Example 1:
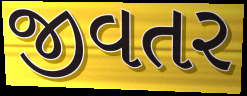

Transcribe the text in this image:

જીવતર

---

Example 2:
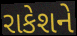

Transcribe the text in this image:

રાકેશને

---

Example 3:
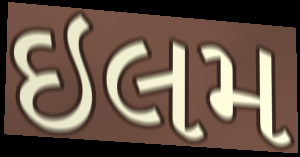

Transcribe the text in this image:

ઇલમ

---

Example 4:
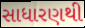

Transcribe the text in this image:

સાધારણથી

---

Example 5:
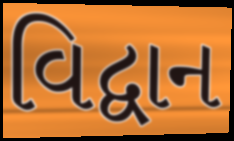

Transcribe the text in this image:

વિદ્વાન